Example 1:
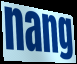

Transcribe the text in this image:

nang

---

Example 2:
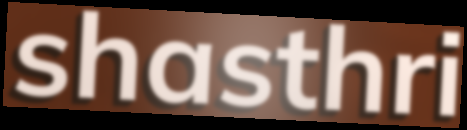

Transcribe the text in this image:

shasthri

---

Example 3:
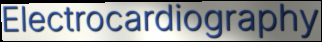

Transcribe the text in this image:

Electrocardiography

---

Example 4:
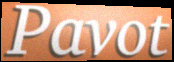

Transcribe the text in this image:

Pavot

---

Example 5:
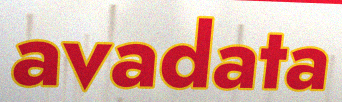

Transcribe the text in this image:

avadata